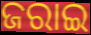
ଜରାଇ